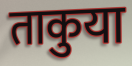
ताकुया